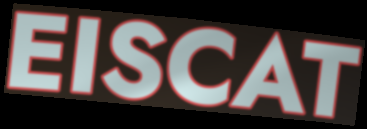
EISCAT